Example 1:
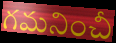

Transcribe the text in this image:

గమనించీ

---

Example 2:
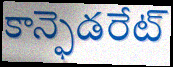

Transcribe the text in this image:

కాన్ఫెడరేట్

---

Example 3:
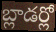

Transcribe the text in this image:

బ్లాడర్లో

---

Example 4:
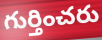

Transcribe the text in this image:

గుర్తించరు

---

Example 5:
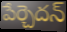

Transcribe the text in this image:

పేర్చెదన్